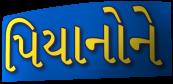
પિયાનોને